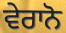
ਵੇਰਾਨੋ